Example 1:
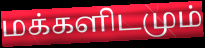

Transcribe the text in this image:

மக்களிடமும்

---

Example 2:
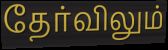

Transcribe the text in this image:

தேர்விலும்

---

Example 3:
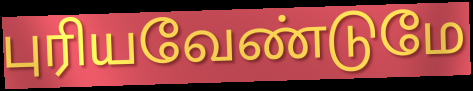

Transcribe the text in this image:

புரியவேண்டுமே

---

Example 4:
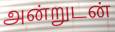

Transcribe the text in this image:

அன்றுடன்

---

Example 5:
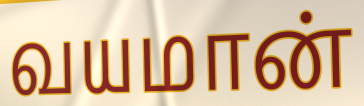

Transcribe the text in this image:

வயமான்